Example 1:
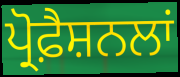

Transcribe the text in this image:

ਪ੍ਰੋਫ਼ੈਸ਼ਨਲਾਂ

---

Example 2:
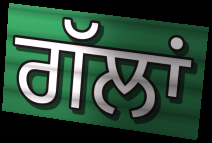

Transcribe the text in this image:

ਗੱਲਾਂ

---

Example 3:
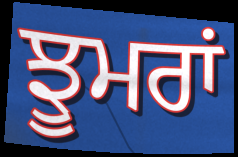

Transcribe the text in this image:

ਝੂਮਰਾਂ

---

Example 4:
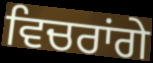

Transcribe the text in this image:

ਵਿਚਰਾਂਗੇ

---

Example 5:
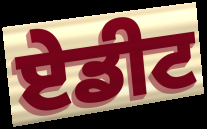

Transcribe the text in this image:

ਏਡੀਟ